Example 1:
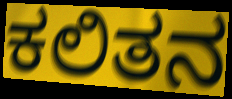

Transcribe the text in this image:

ಕಲಿತನ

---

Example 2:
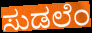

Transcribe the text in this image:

ಸುಡಲೆಂ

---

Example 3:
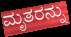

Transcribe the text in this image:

ಮೃತರನ್ನು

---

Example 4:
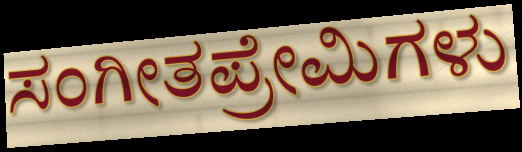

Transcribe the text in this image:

ಸಂಗೀತಪ್ರೇಮಿಗಳು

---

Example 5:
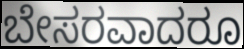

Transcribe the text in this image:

ಬೇಸರವಾದರೂ